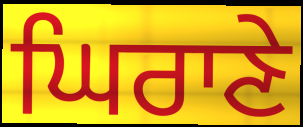
ਘਿਰਾਣੇ